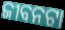
ଜୀବନଟା